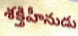
శక్తిహీనుడు